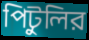
পিটুলির